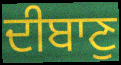
ਦੀਬਾਣੁ